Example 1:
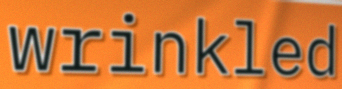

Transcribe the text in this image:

wrinkled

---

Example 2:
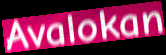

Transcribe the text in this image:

Avalokan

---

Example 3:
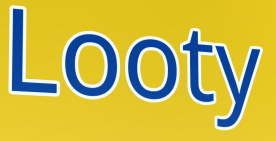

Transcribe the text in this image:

Looty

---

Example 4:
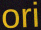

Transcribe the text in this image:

ori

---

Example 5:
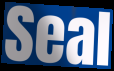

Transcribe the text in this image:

Seal